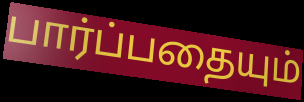
பார்ப்பதையும்